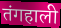
तंगहाली